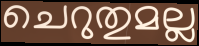
ചെറുതുമല്ല